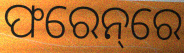
ଫରେନ୍‌ରେ